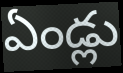
ఏండ్లు